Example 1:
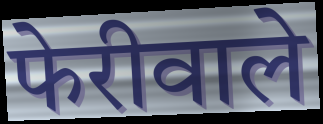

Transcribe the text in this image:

फेरीवाले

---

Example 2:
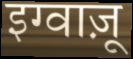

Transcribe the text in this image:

इग्वाज़ू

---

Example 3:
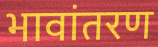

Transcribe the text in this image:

भावांतरण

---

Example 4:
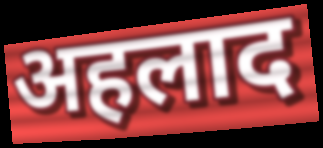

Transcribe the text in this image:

अहलाद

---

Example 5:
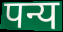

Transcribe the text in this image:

पन्य